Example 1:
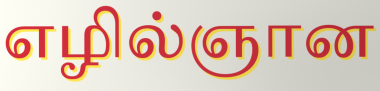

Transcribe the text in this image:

எழில்ஞான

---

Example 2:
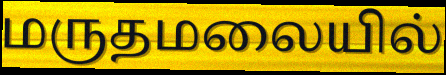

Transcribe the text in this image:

மருதமலையில்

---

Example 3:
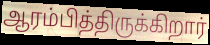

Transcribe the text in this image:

ஆரம்பித்திருக்கிறார்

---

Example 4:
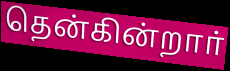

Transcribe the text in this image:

தென்கின்றார்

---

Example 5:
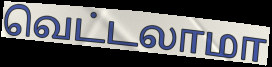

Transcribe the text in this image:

வெட்டலாமா